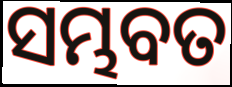
ସମ୍ଭବତ